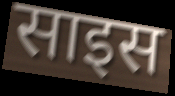
साइस